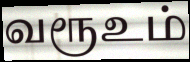
வரூஉம்